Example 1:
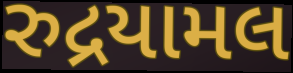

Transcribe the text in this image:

રુદ્રયામલ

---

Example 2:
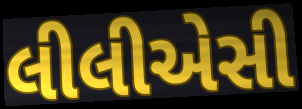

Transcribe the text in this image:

લીલીએસી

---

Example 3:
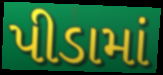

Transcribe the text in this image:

પીડામાં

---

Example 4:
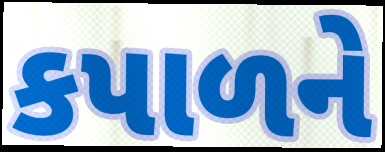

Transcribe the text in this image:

કપાળને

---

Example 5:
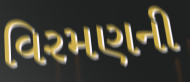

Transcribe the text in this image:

વિરમણની